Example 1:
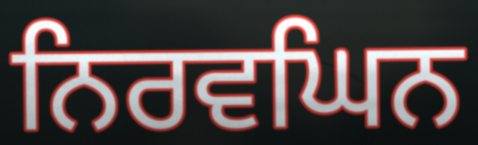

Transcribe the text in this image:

ਨਿਰਵਘਿਨ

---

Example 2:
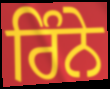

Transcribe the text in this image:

ਰਿੰਨੇ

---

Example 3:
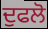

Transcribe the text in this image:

ਦੁਫਲੋ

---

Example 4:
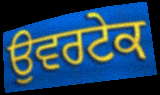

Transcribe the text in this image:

ਉਵਰਟੇਕ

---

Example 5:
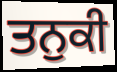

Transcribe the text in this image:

ਤਨੁਕੀ